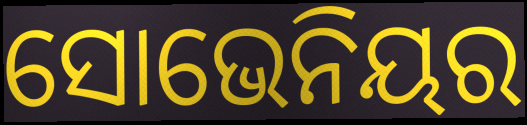
ସୋଭେନିୟର